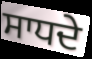
ਸਾਧਦੇ